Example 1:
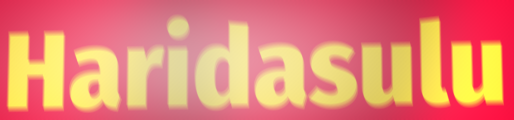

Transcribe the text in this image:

Haridasulu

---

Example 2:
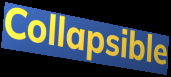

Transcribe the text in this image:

Collapsible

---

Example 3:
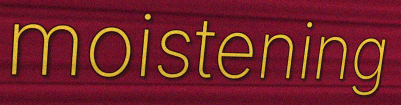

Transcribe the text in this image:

moistening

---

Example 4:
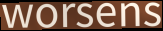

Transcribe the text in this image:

worsens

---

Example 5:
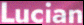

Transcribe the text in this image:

Lucian